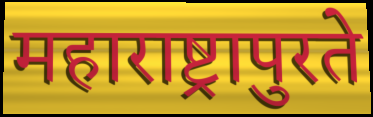
महाराष्ट्रापुरते